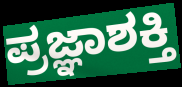
ಪ್ರಜ್ಞಾಶಕ್ತಿ